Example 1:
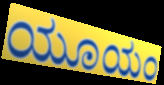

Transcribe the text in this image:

ಯೂಯಂ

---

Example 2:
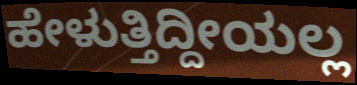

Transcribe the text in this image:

ಹೇಳುತ್ತಿದ್ದೀಯಲ್ಲ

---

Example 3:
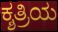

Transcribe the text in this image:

ಕ್ಶತ್ರಿಯ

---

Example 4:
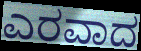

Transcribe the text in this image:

ಎರವಾದ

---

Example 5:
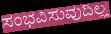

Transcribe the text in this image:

ಸಂಭವಿಸುವುದಿಲ್ಲ